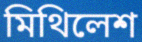
মিথিলেশ